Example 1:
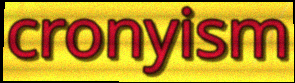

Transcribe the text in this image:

cronyism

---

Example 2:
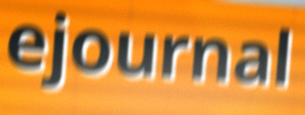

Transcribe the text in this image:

ejournal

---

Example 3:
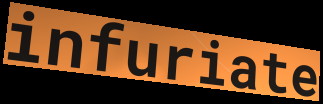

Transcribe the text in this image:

infuriate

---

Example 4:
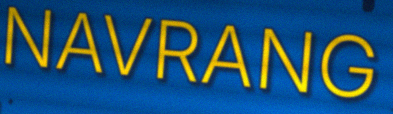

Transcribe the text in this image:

NAVRANG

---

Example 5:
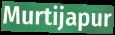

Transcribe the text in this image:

Murtijapur